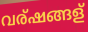
വര്ഷങ്ങള്